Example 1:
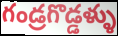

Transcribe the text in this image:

గండ్రగొడ్డళ్ళు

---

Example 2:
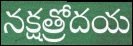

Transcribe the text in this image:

నక్షత్రోదయ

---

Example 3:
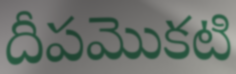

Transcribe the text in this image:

దీపమొకటి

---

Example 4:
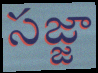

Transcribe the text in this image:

సజ్జా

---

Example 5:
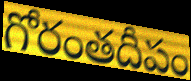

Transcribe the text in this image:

గోరంతదీపం